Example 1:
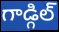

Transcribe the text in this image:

గాడ్గిల్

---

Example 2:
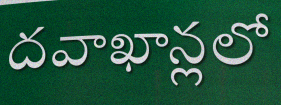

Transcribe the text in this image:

దవాఖాన్లలో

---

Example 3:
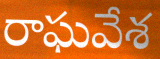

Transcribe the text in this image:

రాఘవేశ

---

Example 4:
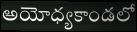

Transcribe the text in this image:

అయోధ్యకాండలో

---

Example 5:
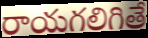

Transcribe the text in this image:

రాయగలిగితే